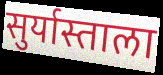
सुर्यास्ताला